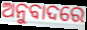
ଅନୁବାଦରେ